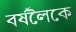
বৰ্ষলৈকে